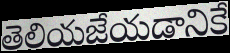
తెలియజేయడానికే